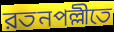
রতনপল্লীতে